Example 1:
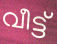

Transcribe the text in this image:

വീട്ട്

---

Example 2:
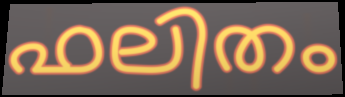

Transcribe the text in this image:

ഫലിതം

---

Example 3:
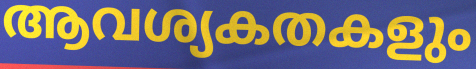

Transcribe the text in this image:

ആവശ്യകതകളും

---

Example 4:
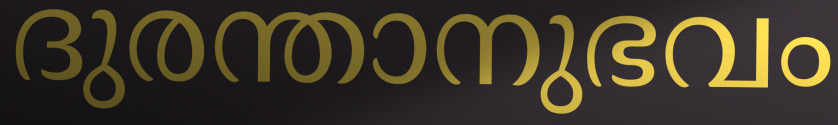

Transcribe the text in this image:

ദുരന്താനുഭവം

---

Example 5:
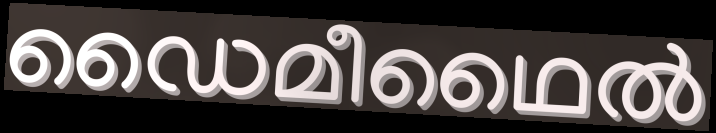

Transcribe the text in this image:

ഡൈമീഥൈൽ